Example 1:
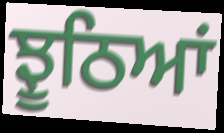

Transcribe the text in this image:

ਝੂਠਿਆਂ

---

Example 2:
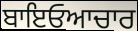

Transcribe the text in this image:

ਬਾਇਓਆਚਾਰ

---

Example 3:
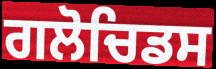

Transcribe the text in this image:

ਗਲੋਚਿਡਸ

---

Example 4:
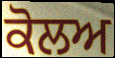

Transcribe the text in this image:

ਕੋਲਅ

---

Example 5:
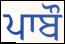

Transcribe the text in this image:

ਪਾਬੌ